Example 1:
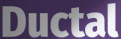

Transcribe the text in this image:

Ductal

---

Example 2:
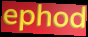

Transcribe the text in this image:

ephod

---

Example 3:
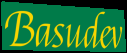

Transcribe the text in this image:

Basudev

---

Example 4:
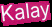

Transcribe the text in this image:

Kalay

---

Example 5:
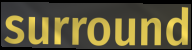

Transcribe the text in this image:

surround